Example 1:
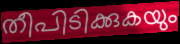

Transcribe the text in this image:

തീപിടിക്കുകയും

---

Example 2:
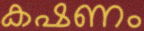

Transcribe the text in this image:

കഷണം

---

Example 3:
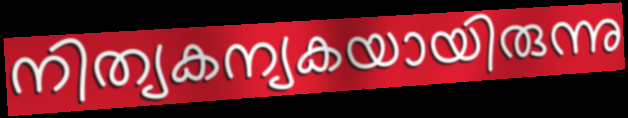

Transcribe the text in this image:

നിത്യകന്യകയായിരുന്നു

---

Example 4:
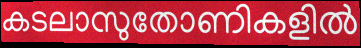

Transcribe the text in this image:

കടലാസുതോണികളിൽ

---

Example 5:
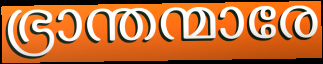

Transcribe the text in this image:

ഭ്രാന്തന്മാരേ